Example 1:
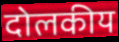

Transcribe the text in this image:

दोलकीय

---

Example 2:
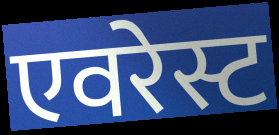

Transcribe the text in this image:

एवरेस्ट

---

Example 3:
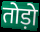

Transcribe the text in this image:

तोड़ो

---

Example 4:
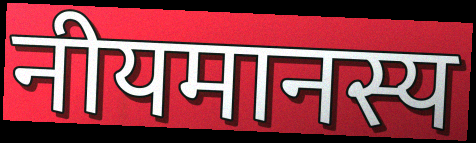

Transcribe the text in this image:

नीयमानस्य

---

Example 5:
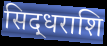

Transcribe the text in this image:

सिद्धराशि